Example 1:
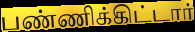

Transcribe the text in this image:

பண்ணிக்கிட்டார்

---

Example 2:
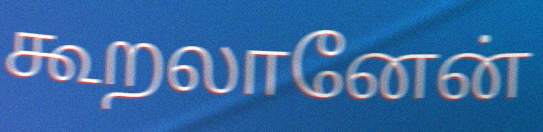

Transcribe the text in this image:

கூறலானேன்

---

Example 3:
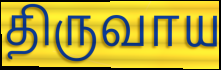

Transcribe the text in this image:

திருவாய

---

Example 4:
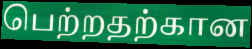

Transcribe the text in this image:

பெற்றதற்கான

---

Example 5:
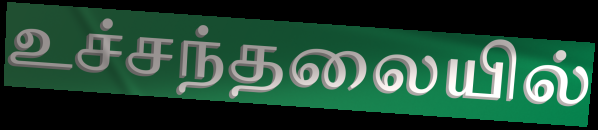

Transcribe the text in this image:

உச்சந்தலையில்